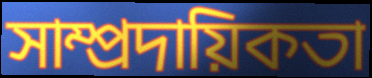
সাম্প্রদায়িকতা